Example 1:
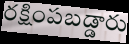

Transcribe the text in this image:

రక్షింపబడ్డారు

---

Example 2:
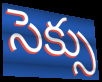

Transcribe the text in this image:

సెక్సు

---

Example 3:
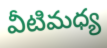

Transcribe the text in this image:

వీటిమధ్య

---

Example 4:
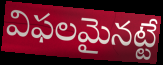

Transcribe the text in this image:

విఫలమైనట్టే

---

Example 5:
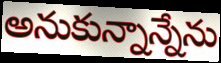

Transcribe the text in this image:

అనుకున్నాన్నేను